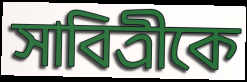
সাবিত্রীকে